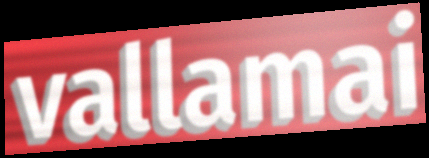
vallamai